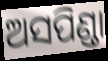
ଅସପିଣ୍ଡା